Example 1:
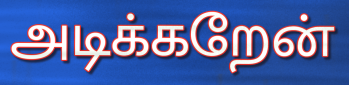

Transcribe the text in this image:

அடிக்கறேன்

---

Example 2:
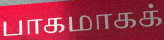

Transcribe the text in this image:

பாகமாகக்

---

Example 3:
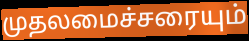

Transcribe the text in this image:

முதலமைச்சரையும்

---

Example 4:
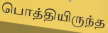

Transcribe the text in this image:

பொத்தியிருந்த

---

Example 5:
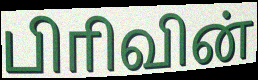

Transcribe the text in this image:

பிரிவின்